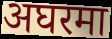
अघरमा